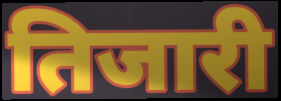
तिजारी